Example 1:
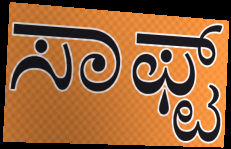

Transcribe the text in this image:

ಸಾಫ್ಟ್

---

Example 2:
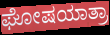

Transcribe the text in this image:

ಘೋಷಯಾತ್ರಾ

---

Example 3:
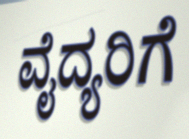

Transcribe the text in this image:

ವೈದ್ಯರಿಗೆ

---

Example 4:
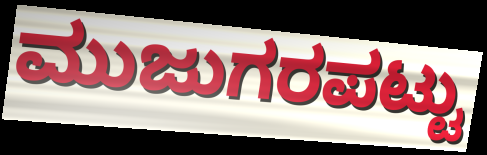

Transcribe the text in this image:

ಮುಜುಗರಪಟ್ಟು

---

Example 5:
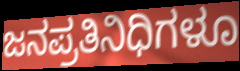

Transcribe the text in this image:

ಜನಪ್ರತಿನಿಧಿಗಳೂ